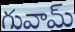
గువామ్